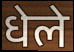
धेले